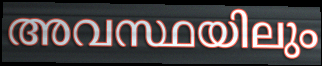
അവസ്ഥയിലും